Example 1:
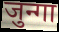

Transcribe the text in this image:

जुन्गा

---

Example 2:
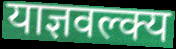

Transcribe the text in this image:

याज्ञवल्क्य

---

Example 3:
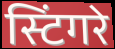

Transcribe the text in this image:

स्टिंगरे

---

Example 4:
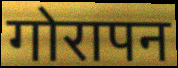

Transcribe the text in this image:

गोरापन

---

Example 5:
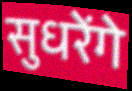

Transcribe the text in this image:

सुधरेंगे